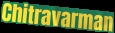
Chitravarman